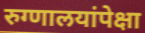
रुग्णालयांपेक्षा